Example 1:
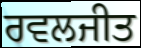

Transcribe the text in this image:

ਰਵਲਜੀਤ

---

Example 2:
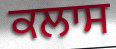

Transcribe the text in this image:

ਕਲਾਸ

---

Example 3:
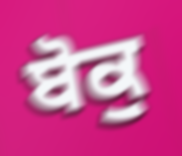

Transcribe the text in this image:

ਬੋਕੁ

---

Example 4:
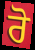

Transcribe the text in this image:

ਰੋ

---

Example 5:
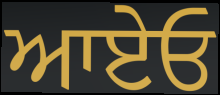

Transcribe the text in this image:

ਆਏਓ